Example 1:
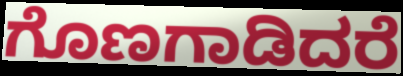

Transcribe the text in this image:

ಗೊಣಗಾಡಿದರೆ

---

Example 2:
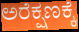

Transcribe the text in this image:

ಅರೆಕ್ಷಣಕ್ಕೆ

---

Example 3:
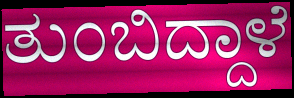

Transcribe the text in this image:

ತುಂಬಿದ್ದಾಳೆ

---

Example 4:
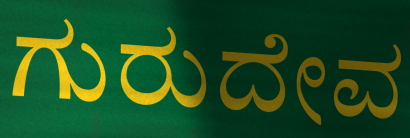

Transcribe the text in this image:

ಗುರುದೇವ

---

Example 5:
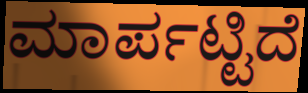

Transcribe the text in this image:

ಮಾರ್ಪಟ್ಟಿದೆ